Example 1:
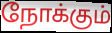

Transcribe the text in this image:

நோக்கும்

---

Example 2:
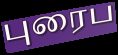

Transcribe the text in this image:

புரைப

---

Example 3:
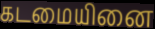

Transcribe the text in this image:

கடமையினை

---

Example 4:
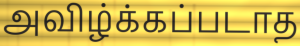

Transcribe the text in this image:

அவிழ்க்கப்படாத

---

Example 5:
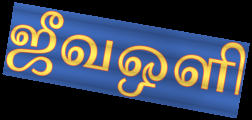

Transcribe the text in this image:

ஜீவஒளி